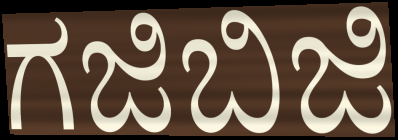
ಗಜಿಬಿಜಿ